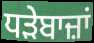
ਧੜੇਬਾਜ਼ਾਂ